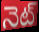
నెట్